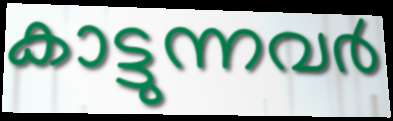
കാട്ടുന്നവർ